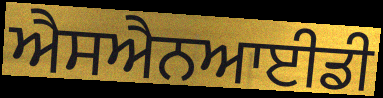
ਐਸਐਨਆਈਡੀ